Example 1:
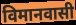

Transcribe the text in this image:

विमानवासी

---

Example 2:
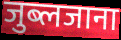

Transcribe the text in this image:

जुब्लजाना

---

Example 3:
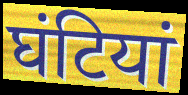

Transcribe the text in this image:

घंटियां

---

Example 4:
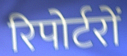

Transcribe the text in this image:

रिपोर्टरों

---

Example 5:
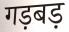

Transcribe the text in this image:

गड़बड़